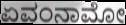
ಏವಂನಾಮೋ